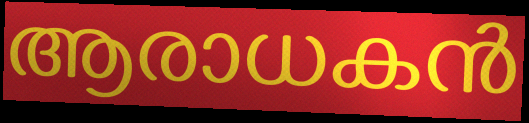
ആരാധകൻ